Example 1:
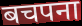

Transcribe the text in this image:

बचपना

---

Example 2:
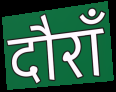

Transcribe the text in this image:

दौराँ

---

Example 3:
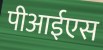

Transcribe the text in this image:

पीआईएस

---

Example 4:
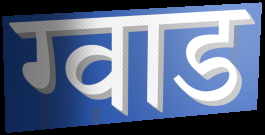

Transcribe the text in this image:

ग्वाड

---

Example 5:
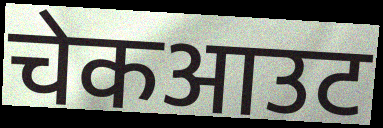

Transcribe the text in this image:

चेकआउट